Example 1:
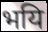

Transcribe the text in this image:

भयि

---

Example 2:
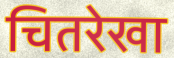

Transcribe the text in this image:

चितरेखा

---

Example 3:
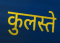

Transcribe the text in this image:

कुलस्ते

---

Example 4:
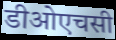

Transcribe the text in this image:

डीओएचसी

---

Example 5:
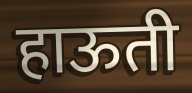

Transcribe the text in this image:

हाऊती